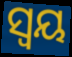
ସ୍ୱୟ